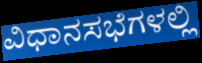
ವಿಧಾನಸಭೆಗಳಲ್ಲಿ